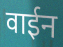
वाईन